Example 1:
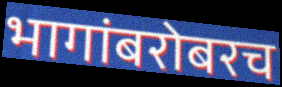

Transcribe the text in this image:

भागांबरोबरच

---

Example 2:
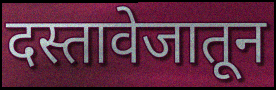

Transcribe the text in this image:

दस्तावेजातून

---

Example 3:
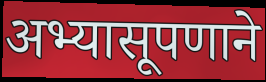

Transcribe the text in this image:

अभ्यासूपणाने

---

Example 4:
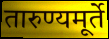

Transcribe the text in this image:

तारुण्यमूर्ते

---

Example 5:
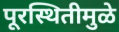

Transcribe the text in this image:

पूरस्थितीमुळे